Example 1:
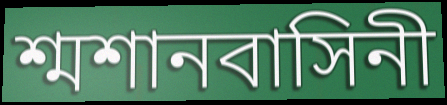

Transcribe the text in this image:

শ্মশানবাসিনী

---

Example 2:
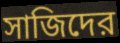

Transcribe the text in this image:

সাজিদের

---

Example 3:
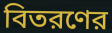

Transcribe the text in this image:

বিতরণের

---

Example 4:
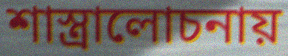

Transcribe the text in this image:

শাস্ত্রালোচনায়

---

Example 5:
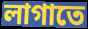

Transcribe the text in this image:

লাগাতে